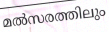
മൽസരത്തിലും